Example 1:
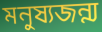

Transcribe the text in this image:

মনুষ্যজন্ম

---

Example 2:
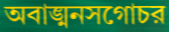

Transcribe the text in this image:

অবাঙ্মনসগোচর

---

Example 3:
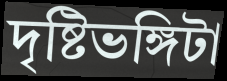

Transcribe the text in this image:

দৃষ্টিভঙ্গিটা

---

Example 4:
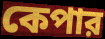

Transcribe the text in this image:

কেপার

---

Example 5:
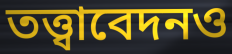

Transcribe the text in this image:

তত্ত্বাবেদনও